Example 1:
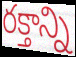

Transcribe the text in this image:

రక్తాన్ని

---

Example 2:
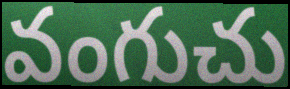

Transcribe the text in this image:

వంగుచు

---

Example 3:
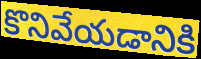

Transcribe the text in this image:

కొనివేయడానికి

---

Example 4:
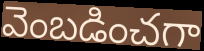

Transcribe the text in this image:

వెంబడించగా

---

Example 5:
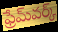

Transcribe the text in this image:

ఫ్రేమ్‌వర్క్